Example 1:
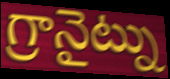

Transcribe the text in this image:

గ్రానైట్ను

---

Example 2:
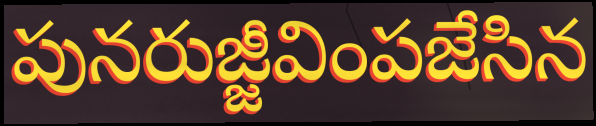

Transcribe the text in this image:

పునరుజ్జీవింపజేసిన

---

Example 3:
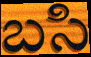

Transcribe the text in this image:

బసి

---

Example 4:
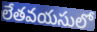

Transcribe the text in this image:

లేతవయసులో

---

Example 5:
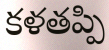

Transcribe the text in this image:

కళతప్పి